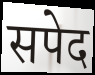
सपेद